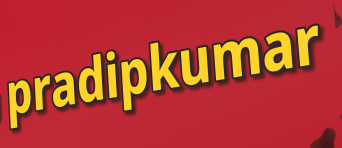
pradipkumar